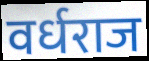
वर्धराज